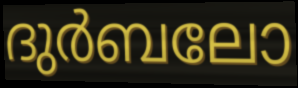
ദുർബലോ